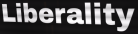
Liberality